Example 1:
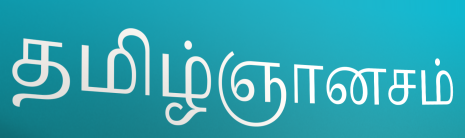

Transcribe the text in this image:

தமிழ்ஞானசம்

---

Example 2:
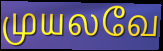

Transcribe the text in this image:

முயலவே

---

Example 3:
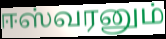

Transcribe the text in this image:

ஈஸ்வரனும்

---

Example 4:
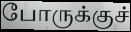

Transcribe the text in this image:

போருக்குச்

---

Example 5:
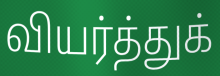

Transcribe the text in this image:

வியர்த்துக்